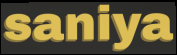
saniya